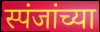
स्पंजांच्या